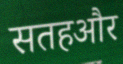
सतहऔर